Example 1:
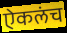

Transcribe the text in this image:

ऐकलंच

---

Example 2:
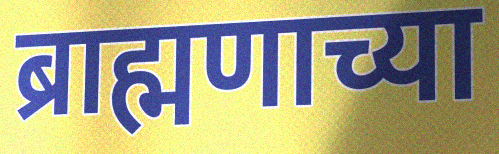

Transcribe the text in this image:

ब्राह्मणाच्या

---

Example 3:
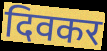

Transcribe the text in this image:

दिवकर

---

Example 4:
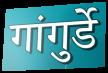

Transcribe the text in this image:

गांगुर्डे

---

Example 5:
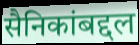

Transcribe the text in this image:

सैनिकांबद्दल